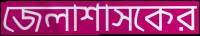
জেলাশাসকের